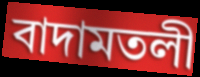
বাদামতলী